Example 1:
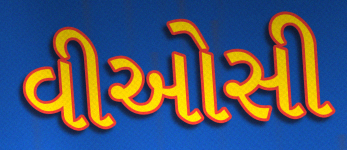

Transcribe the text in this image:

વીઓસી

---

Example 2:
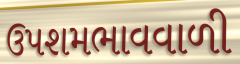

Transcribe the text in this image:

ઉપશમભાવવાળી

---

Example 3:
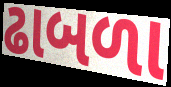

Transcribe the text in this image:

ઢાબળા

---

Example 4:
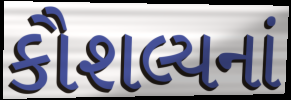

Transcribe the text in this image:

કૌશલ્યનાં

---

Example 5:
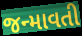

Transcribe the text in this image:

જન્માવતી